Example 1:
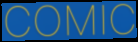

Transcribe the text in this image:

COMIC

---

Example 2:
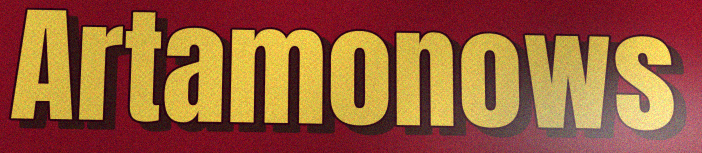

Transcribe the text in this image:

Artamonows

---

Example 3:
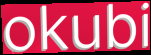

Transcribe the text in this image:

okubi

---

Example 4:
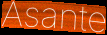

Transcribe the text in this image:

Asante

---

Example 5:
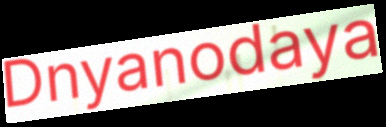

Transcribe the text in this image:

Dnyanodaya